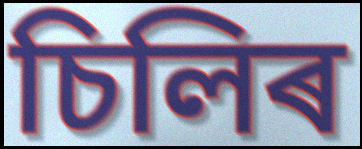
চিলিৰ